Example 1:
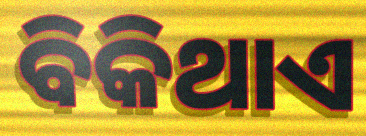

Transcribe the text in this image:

ବିକିଥାଏ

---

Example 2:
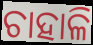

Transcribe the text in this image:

ଚାହାଳି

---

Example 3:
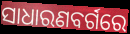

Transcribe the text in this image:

ସାଧାରଣବର୍ଗରେ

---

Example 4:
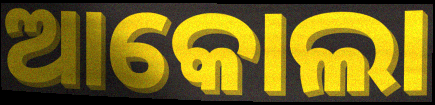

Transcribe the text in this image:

ଆକୋଲା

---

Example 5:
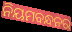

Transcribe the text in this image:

ନିୟମବନ୍ଧନର